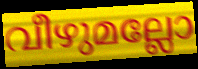
വീഴുമല്ലോ